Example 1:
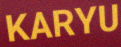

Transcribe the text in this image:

KARYU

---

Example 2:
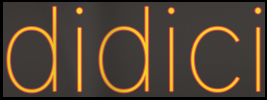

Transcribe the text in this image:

didici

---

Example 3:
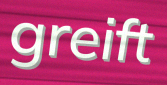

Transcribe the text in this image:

greift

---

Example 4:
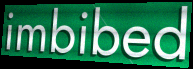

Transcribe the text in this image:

imbibed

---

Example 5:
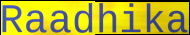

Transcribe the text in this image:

Raadhika